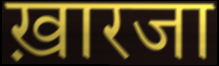
ख़ारजा